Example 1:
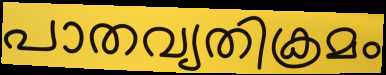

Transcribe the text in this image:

പാതവ്യതിക്രമം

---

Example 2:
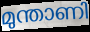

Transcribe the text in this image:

മുന്താണി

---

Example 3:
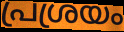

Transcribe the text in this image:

പ്രശ്രയം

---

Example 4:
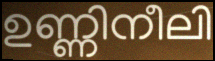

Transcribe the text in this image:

ഉണ്ണിനീലി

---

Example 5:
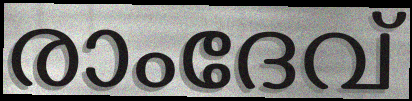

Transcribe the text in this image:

രാംദേവ്